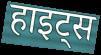
हाइट्स